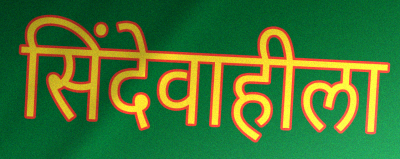
सिंदेवाहीला